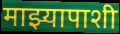
माझ्यापाशी